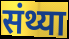
संथ्या